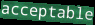
acceptable